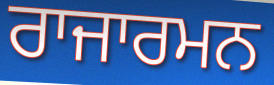
ਰਾਜਾਰਮਨ